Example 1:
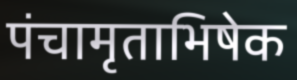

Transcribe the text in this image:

पंचामृताभिषेक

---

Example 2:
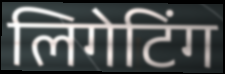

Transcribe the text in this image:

लिगेटिंग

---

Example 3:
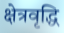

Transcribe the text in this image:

क्षेत्रवृद्धि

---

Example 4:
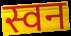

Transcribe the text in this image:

स्वन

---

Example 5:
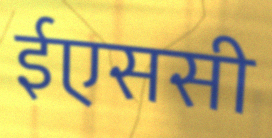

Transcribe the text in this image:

ईएससी